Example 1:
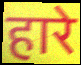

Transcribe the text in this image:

हारे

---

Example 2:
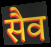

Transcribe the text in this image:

सैव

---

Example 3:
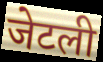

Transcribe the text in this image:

जेटली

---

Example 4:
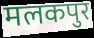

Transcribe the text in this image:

मलकपुर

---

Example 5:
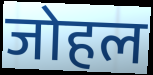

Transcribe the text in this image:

जोहल